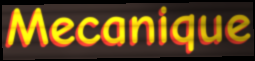
Mecanique